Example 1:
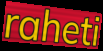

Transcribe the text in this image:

raheti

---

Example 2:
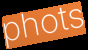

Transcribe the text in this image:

phots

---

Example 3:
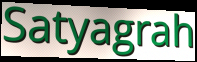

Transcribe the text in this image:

Satyagrah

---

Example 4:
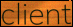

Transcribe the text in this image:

client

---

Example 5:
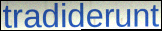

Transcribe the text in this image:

tradiderunt